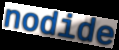
nodide